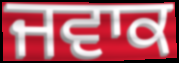
ਜਵਾਕ